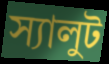
স্যালুট